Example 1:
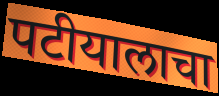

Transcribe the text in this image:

पटीयालाचा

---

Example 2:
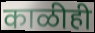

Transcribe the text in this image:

काळीही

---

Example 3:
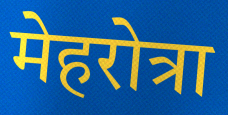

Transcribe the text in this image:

मेहरोत्रा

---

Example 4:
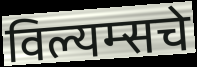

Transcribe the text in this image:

विल्यम्सचे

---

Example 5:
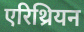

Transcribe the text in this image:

एरिथ्रियन